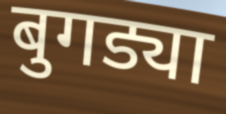
बुगड्या